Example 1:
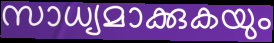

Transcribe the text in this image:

സാധ്യമാക്കുകയും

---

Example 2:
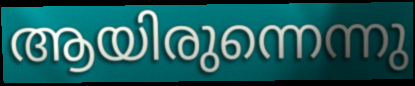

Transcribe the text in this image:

ആയിരുന്നെന്നു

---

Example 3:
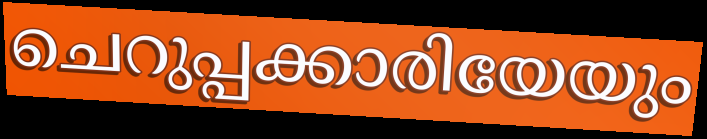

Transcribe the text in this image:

ചെറുപ്പക്കാരിയേയും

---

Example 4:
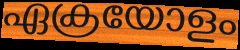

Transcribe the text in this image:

ഏക്രയോളം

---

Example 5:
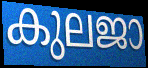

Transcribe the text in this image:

കുലജാ